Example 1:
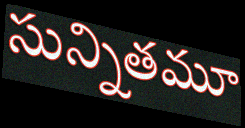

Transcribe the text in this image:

సున్నితమూ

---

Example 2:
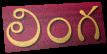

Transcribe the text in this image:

లింగ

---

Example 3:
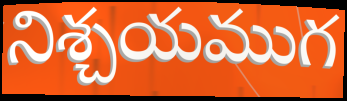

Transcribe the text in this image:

నిశ్చయముగ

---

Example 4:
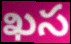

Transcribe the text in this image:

ఖస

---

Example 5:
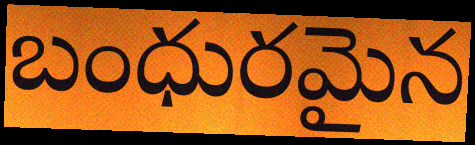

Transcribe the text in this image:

బంధురమైన